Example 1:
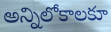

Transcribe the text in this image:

అన్నిలోకాలకూ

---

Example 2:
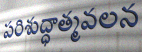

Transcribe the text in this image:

పరిశుద్ధాత్మవలన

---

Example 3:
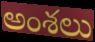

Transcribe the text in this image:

అంశలు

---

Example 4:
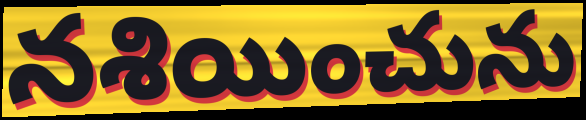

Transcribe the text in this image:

నశియించును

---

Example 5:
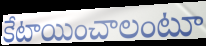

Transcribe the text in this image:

కేటాయించాలంటూ